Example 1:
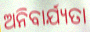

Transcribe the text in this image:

ଅନିବାର୍ଯ୍ୟତା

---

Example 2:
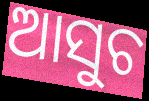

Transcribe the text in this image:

ଆସୁଚ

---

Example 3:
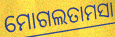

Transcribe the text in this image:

ମୋଗଲତାମସା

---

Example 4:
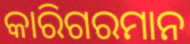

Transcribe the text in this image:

କାରିଗରମାନ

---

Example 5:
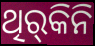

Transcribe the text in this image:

ଥିର୍‍କିନି